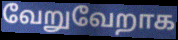
வேறுவேறாக